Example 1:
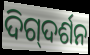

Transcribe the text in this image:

ଦିଗ୍‌ଦର୍ଶନ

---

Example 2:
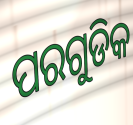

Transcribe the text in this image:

ପରଗୁଡିକ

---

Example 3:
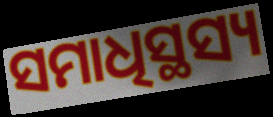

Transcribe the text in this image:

ସମାଧିସ୍ଥସ୍ୟ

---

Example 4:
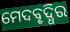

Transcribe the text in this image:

ମେଦବୃଦ୍ଧିର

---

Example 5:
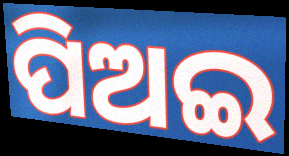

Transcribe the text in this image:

ପିଅଇ